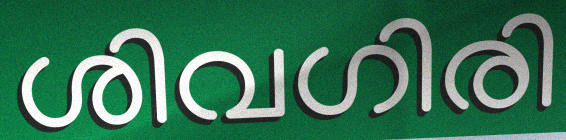
ശിവഗിരി